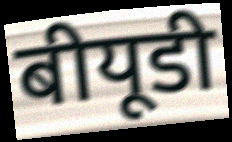
बीयूडी